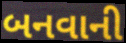
બનવાની